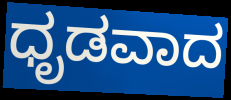
ಧೃಡವಾದ